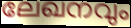
ലേഖനവും